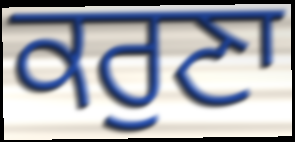
ਕਰੁਣਾ